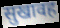
सुखावह